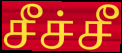
சீச்சீ